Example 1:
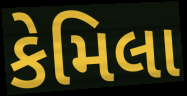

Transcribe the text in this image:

કેમિલા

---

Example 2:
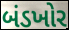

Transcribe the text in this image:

બંડખોર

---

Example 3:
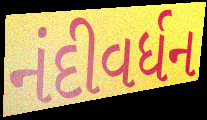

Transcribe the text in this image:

નંદીવર્ધન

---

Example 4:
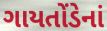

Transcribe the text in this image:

ગાયતોંડેનાં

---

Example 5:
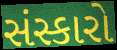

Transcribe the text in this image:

સંસ્કારો